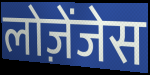
लोज़ेंजेस